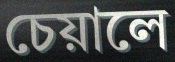
চেয়ালে